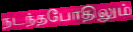
நடந்தபோதிலும்